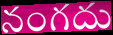
నంగదు